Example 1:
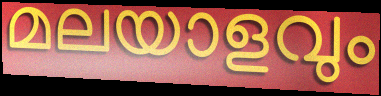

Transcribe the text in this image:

മലയാളവും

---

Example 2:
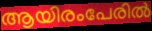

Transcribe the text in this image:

ആയിരംപേരിൽ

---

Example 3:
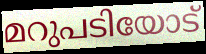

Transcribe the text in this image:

മറുപടിയോട്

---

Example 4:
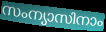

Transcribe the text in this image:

സംന്യാസിനാം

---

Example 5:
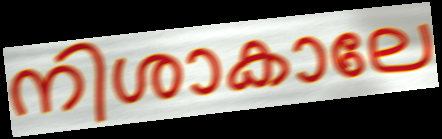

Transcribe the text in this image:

നിശാകാലേ